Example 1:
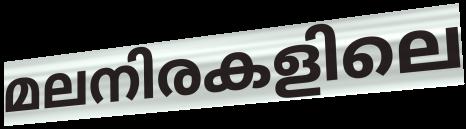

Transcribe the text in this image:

മലനിരകളിലെ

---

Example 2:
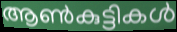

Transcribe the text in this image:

ആൺകുട്ടികൾ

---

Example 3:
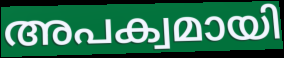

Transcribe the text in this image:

അപക്വമായി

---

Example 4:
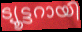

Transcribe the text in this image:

ട്യൂട്ടറായി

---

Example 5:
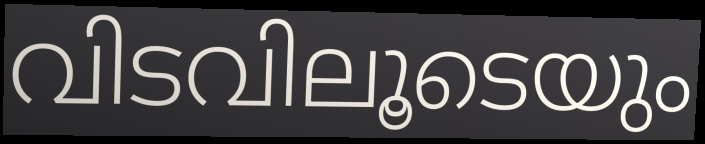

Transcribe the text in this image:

വിടവിലൂടെയും